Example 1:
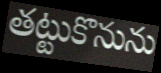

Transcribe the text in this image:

తట్టుకొనును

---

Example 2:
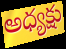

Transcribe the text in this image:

అధ్యక్షు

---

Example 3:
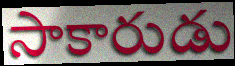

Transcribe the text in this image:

సాకారుడు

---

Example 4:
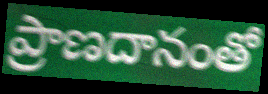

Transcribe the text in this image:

ప్రాణదానంతో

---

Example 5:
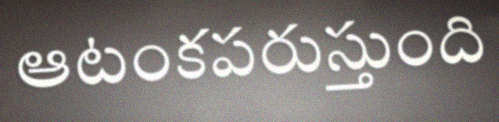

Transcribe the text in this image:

ఆటంకపరుస్తుంది